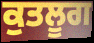
ਕੁਤਲੂਗ